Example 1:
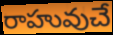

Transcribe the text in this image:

రాహువుచే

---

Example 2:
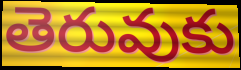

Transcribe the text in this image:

తెరువుకు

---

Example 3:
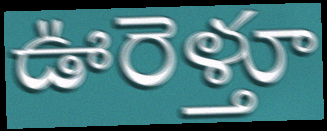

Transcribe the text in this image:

ఊరెళ్తూ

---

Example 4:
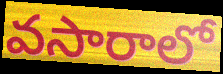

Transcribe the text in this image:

వసారాలో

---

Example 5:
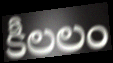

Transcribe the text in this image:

కీలలం